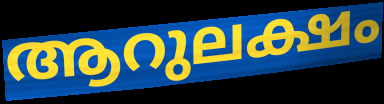
ആറുലക്ഷം